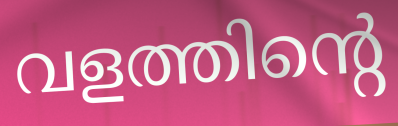
വളത്തിന്റെ